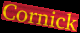
Cornick